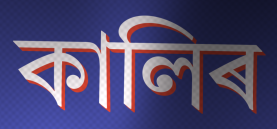
কালিৰ